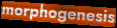
morphogenesis